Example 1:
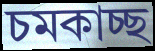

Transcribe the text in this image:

চমকাচ্ছ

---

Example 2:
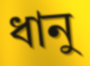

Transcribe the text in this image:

ধানু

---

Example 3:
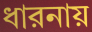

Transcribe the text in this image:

ধারনায়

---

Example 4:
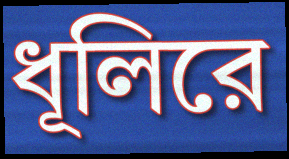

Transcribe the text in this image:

ধূলিরে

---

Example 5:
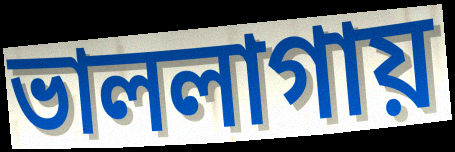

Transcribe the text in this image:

ভাললাগায়